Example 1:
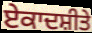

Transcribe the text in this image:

ਏਕਾਦਸ਼ੀਤੇ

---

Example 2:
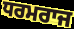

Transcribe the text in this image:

ਧਰਮਰਾਜ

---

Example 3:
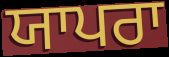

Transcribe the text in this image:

ਯਾਪਰਾ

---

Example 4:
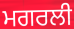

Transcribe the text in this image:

ਮਗਰਲੀ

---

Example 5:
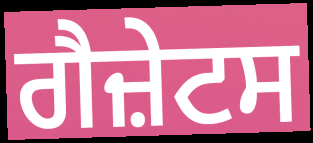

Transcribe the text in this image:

ਗੈਜ਼ੇਟਸ